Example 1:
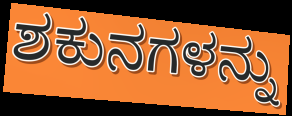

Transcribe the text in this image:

ಶಕುನಗಳನ್ನು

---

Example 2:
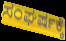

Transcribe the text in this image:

ಸಂಘರ್ಷಕ್ಕೆ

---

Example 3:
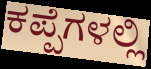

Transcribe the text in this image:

ಕಪ್ಪೆಗಳಲ್ಲಿ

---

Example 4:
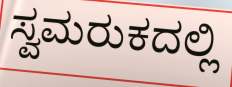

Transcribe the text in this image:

ಸ್ವಮರುಕದಲ್ಲಿ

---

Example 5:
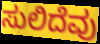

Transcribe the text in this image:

ಸುಲಿದೆವು